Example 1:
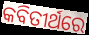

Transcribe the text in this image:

କବିତୀର୍ଥରେ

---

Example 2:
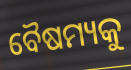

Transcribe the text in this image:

ବୈଷମ୍ୟକୁ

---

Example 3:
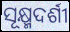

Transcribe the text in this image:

ସୂକ୍ଷ୍ମଦର୍ଶୀ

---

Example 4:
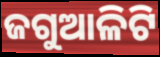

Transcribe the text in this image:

ଜଗୁଆଳିଟି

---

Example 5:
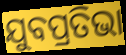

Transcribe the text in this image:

ଯୁବପ୍ରତିଭା